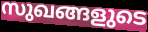
സുഖങ്ങളുടെ